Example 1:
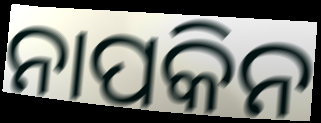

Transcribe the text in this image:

ନାପକିନ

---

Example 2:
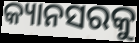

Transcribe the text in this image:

କ୍ୟାନସରକୁ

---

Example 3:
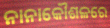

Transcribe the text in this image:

ନାନାକୌଶଳରେ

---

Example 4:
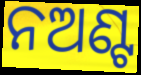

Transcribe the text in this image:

ନଅଣ୍ଟ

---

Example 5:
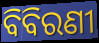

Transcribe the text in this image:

ବିବିରଣୀ